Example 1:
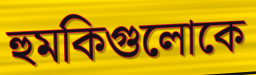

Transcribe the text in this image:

হুমকিগুলোকে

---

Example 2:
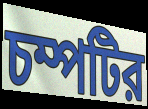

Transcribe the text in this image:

চম্পটির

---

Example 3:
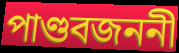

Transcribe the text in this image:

পাণ্ডবজননী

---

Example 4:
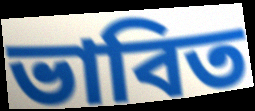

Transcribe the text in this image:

ভাবিত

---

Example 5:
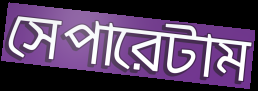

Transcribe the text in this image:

সেপারেটাম